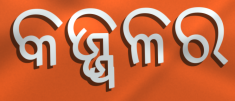
କଜ୍ଜ୍ୱଳର